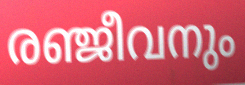
രഞ്ജീവനും